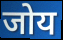
जोय